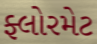
ફ્લોરમેટ